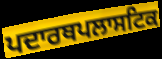
ਪਦਾਰਥਪਲਾਸਟਿਕ